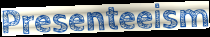
Presenteeism